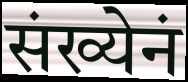
संख्येनं